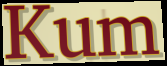
Kum